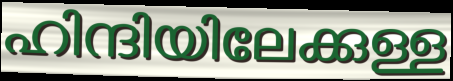
ഹിന്ദിയിലേക്കുള്ള